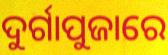
ଦୁର୍ଗାପୁଜାରେ